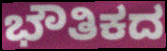
ಭೌತಿಕದ